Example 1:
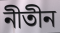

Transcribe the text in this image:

নীতীন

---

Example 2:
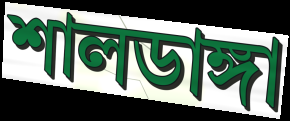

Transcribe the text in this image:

শালডাঙ্গা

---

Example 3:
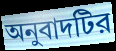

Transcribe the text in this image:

অনুবাদটির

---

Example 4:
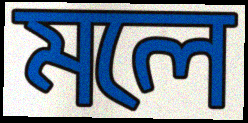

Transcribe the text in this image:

মলে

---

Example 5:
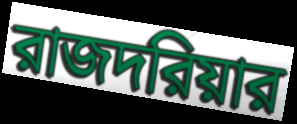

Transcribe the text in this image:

রাজদরিয়ার